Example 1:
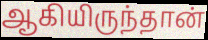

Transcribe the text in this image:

ஆகியிருந்தான்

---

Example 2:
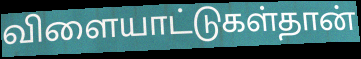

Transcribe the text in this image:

விளையாட்டுகள்தான்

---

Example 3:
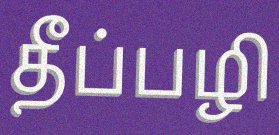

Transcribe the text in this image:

தீப்பழி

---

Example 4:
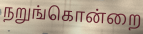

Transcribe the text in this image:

நறுங்கொன்றை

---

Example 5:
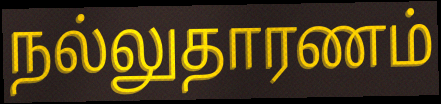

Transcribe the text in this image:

நல்லுதாரணம்